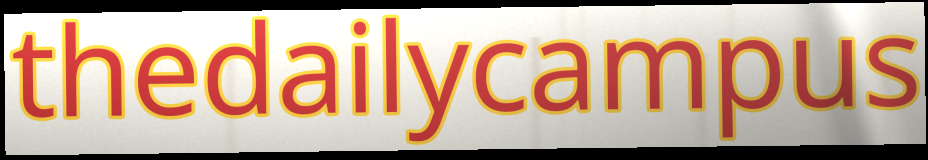
thedailycampus